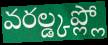
వరల్డ్కప్ల్లో